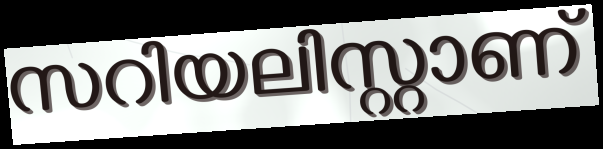
സറിയലിസ്റ്റാണ്